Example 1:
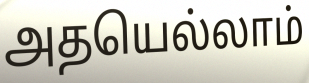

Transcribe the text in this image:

அதயெல்லாம்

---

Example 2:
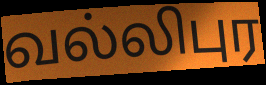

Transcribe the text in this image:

வல்லிபுர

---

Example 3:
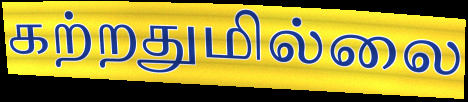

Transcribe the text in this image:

கற்றதுமில்லை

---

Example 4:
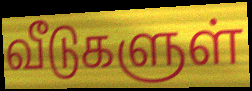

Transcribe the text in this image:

வீடுகளுள்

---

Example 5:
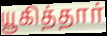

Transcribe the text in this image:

யூகித்தார்